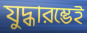
যুদ্ধারম্ভেই